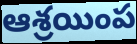
ఆశ్రయింప